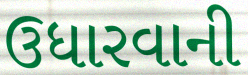
ઉધારવાની